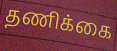
தணிக்கை